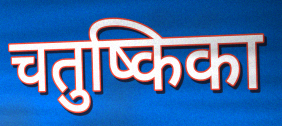
चतुष्किका